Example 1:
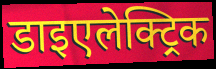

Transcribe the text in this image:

डाइएलेक्ट्रिक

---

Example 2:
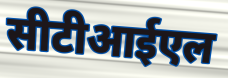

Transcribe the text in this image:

सीटीआईएल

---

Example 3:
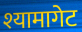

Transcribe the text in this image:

श्यामागेट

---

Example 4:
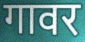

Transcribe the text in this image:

गावर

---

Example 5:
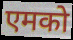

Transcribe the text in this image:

एमको